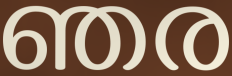
ഞര